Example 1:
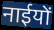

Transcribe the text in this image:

नाईयों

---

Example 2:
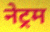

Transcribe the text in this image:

नेट्रम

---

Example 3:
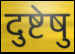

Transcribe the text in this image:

दुष्टेषु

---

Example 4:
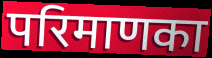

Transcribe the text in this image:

परिमाणका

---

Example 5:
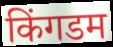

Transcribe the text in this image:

किंगडम